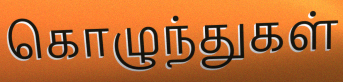
கொழுந்துகள்